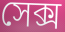
সেক্স